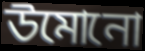
উমোনো